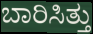
ಬಾರಿಸಿತ್ತು